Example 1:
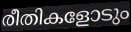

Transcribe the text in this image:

രീതികളോടും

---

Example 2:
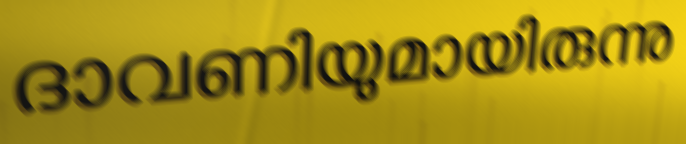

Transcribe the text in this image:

ദാവണിയുമായിരുന്നു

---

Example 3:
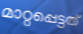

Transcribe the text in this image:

മാറ്റപ്പെട്ടത്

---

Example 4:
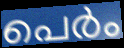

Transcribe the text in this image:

പെർം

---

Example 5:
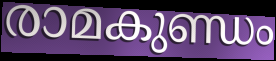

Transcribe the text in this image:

രാമകുണ്ഡം